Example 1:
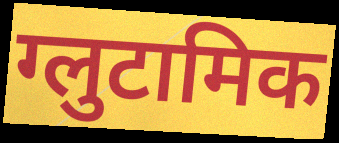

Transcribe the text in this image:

ग्लुटामिक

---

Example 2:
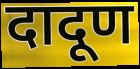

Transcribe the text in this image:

दादूण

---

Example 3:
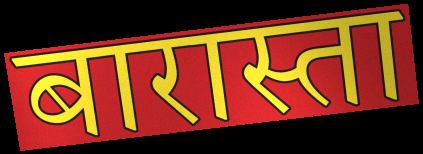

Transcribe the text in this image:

बारास्ता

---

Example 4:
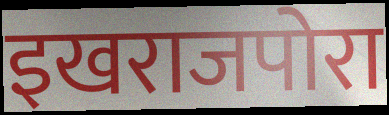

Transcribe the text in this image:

इखराजपोरा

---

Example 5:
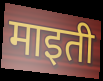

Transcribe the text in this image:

माइती